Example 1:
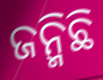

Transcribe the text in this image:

ଜନ୍ମିଛି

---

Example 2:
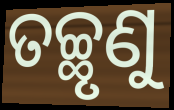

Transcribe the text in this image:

ତଚ୍ଛୃଣୁ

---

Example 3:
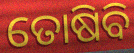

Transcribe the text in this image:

ତୋଷିବି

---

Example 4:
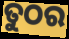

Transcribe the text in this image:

ତୁଠର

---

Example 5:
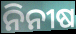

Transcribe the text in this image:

ନିନୀଷ